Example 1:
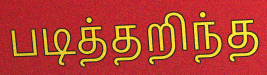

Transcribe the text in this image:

படித்தறிந்த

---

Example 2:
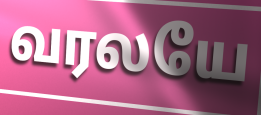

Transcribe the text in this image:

வரலயே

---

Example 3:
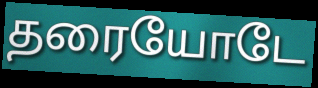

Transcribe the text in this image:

தரையோடே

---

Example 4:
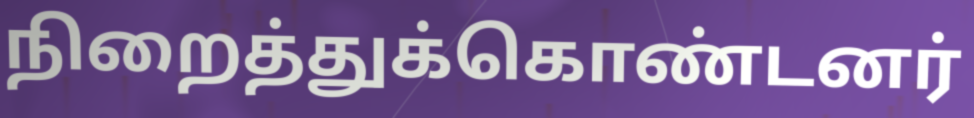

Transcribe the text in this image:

நிறைத்துக்கொண்டனர்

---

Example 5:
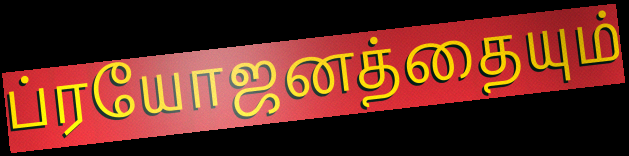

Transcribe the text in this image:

ப்ரயோஜனத்தையும்